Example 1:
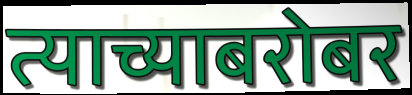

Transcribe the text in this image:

त्याच्याबरोबर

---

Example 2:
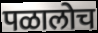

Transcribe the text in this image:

पळालोच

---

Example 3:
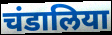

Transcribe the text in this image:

चंडालिया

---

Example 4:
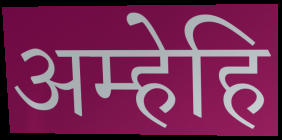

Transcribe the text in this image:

अम्हेहि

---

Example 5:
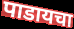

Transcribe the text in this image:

पाडायचा